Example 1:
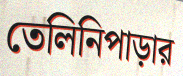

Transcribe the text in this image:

তেলিনিপাড়ার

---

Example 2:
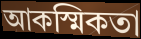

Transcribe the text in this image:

আকস্মিকতা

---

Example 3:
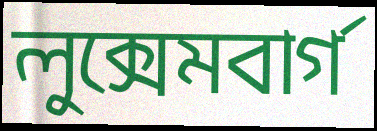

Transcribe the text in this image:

লুক্সেমবার্গ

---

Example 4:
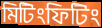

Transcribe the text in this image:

মিটিংফিটিং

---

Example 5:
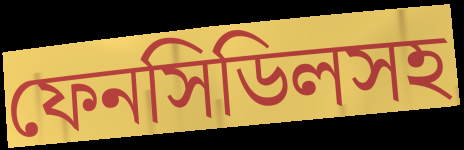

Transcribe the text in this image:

ফেনসিডিলসহ